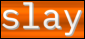
slay